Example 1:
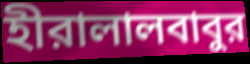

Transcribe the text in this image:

হীরালালবাবুর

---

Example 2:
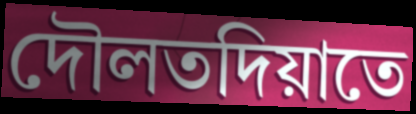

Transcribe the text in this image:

দৌলতদিয়াতে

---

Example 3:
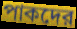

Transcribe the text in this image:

পাকদের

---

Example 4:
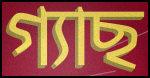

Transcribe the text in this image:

গ্যাছ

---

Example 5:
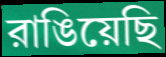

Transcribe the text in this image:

রাঙিয়েছি